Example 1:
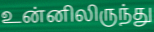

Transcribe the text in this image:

உன்னிலிருந்து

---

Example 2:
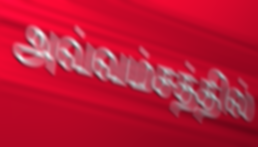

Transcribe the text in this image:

அவ்வம்சத்தில்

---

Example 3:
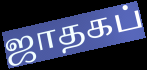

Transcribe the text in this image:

ஜாதகப்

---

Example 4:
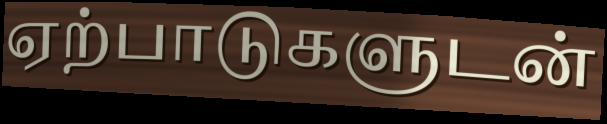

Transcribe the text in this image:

ஏற்பாடுகளுடன்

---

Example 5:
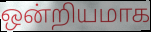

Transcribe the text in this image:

ஒன்றியமாக